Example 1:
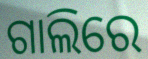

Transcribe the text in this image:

ଗାଲିରେ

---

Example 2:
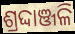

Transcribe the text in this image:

ଶ୍ରଦ୍ଦାଞ୍ଜଳି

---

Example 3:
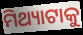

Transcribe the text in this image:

ମିଥ୍ୟାଟାକୁ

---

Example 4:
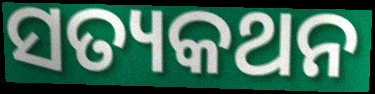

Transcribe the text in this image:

ସତ୍ୟକଥନ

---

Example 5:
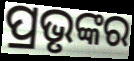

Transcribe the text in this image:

ପ୍ରଭୃଙ୍କର